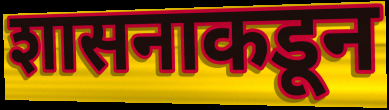
शासनाकडून